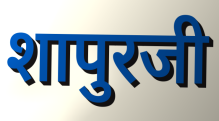
शापुरजी